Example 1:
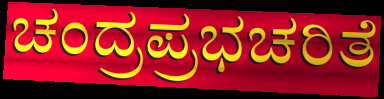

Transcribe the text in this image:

ಚಂದ್ರಪ್ರಭಚರಿತೆ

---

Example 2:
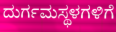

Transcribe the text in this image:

ದುರ್ಗಮಸ್ಥಳಗಳಿಗೆ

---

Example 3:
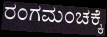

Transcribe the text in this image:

ರಂಗಮಂಚಕ್ಕೆ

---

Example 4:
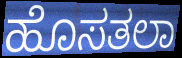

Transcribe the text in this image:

ಹೊಸತಲಾ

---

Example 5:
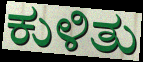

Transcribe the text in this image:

ಕುಳಿತು